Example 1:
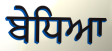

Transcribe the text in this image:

ਬੇਧਿਆ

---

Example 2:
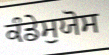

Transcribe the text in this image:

ਕੰਡੇਸੁਯੋਸ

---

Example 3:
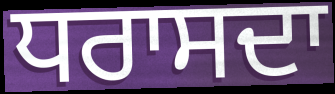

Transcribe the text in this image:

ਧਰਾਸਦਾ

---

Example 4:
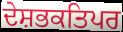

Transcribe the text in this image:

ਦੇਸ਼ਭਕਤਿਪਰ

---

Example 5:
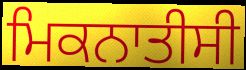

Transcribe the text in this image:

ਮਿਕਨਾਤੀਸੀ